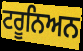
ਟਰੂਨਿਅਨ